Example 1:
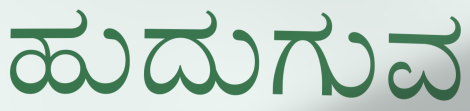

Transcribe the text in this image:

ಹುದುಗುವ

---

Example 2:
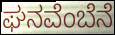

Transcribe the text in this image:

ಘನವೆಂಬೆನೆ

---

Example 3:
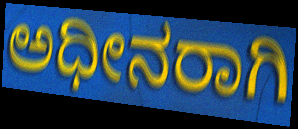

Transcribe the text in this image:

ಅಧೀನರಾಗಿ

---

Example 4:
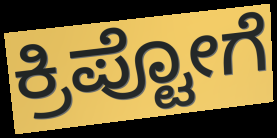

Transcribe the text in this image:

ಕ್ರಿಪ್ಟೋಗೆ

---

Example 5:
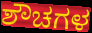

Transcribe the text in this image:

ಶೌಚಗಳ